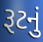
રૂટનું